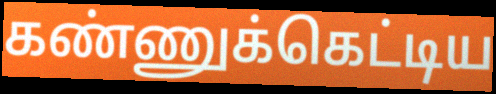
கண்ணுக்கெட்டிய